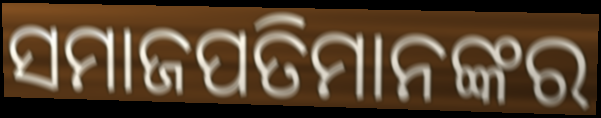
ସମାଜପତିମାନଙ୍କର